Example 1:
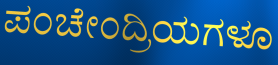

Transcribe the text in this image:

ಪಂಚೇಂದ್ರಿಯಗಳೂ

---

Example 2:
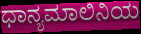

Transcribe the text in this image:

ಧಾನ್ಯಮಾಲಿನಿಯ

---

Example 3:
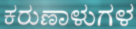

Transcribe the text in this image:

ಕರುಣಾಳುಗಳ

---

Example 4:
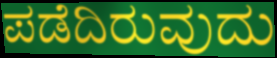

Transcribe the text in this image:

ಪಡೆದಿರುವುದು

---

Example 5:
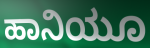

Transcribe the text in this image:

ಹಾನಿಯೂ